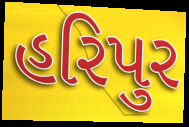
હરિપુર